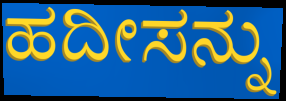
ಹದೀಸನ್ನು